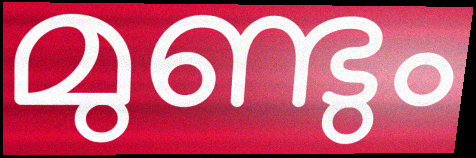
മുണ്ടും